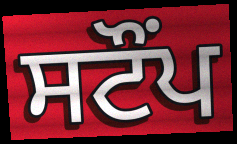
ਸਟੌਂਪ